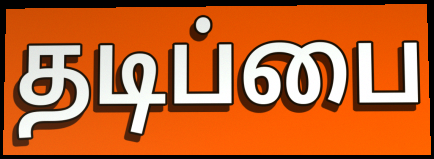
தடிப்பை